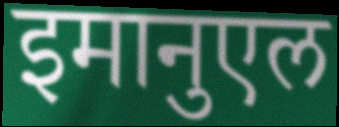
इमानुएल